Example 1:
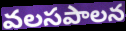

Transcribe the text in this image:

వలసపాలన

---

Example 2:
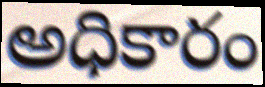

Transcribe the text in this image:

అధికారం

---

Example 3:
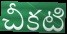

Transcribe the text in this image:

చీకటి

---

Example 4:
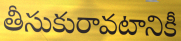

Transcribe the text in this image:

తీసుకురావటానికీ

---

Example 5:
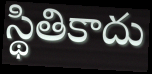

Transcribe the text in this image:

స్థితికాదు